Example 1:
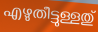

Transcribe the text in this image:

എഴുതീട്ടുള്ളതു്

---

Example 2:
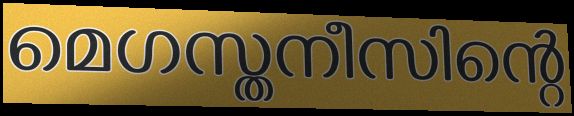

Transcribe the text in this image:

മെഗസ്തനീസിന്റെ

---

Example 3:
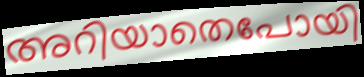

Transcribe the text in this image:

അറിയാതെപോയി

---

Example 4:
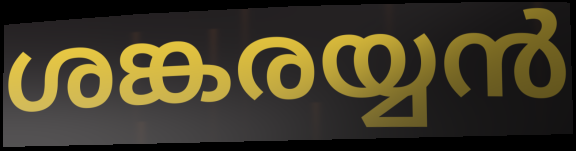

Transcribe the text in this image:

ശങ്കരയ്യൻ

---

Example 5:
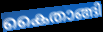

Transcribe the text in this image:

കൈതാങ്ങി